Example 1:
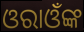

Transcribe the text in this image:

ଓରାଓଁଙ୍କ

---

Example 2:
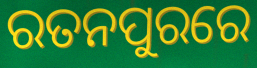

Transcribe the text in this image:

ରତନପୁରରେ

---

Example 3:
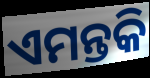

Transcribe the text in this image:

ଏମନ୍ତକି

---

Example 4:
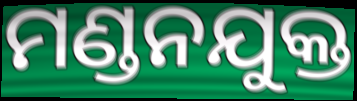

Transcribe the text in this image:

ମଣ୍ଡନଯୁକ୍ତ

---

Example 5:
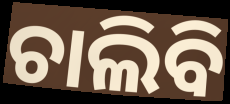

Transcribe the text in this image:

ଚାଲିବି